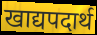
खाद्यपदार्थ